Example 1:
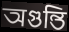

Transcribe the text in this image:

অগুন্তি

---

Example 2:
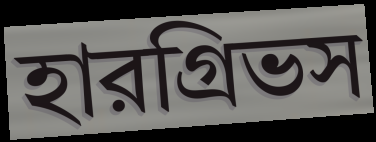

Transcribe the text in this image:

হারগ্রিভস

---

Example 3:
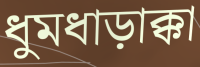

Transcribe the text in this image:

ধুমধাড়াক্কা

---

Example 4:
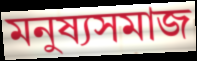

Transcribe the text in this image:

মনুষ্যসমাজ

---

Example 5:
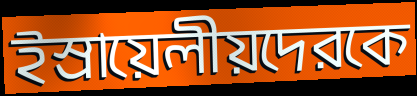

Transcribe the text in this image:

ইস্রায়েলীয়দেরকে